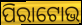
ପିରାଟୋଭ